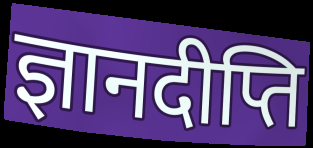
ज्ञानदीप्ति